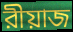
রীয়াজ